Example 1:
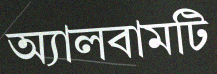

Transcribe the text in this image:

অ্যালবামটি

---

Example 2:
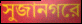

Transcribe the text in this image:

সুজানগরে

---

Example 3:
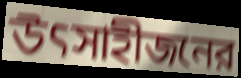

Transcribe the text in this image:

উৎসাহীজনের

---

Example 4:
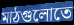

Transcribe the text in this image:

মাঠগুলোতে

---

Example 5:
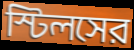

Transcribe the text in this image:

স্টিলসের